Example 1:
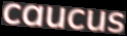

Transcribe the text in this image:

caucus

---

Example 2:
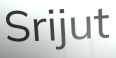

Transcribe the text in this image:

Srijut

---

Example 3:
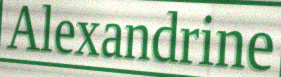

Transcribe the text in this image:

Alexandrine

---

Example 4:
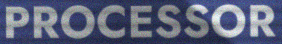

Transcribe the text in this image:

PROCESSOR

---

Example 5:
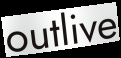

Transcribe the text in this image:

outlive